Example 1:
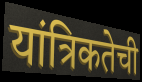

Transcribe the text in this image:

यांत्रिकतेची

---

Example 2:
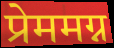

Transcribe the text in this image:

प्रेममग्न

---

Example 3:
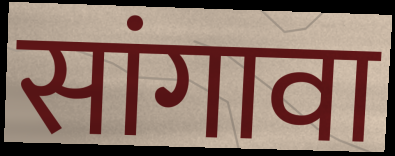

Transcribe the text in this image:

सांगावा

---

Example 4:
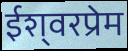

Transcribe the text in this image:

ईश्वरप्रेम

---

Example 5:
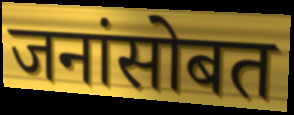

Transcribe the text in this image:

जनांसोबत